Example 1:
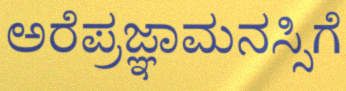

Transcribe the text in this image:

ಅರೆಪ್ರಜ್ಞಾಮನಸ್ಸಿಗೆ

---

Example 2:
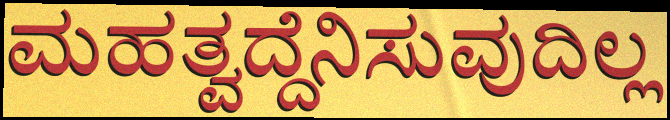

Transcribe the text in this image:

ಮಹತ್ವದ್ದೆನಿಸುವುದಿಲ್ಲ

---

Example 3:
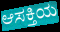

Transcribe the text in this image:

ಆಸಕ್ತಿಯ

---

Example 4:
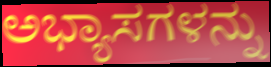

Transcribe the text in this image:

ಅಭ್ಯಾಸಗಳನ್ನು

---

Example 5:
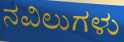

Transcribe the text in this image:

ನವಿಲುಗಳು